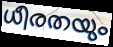
ധീരതയും